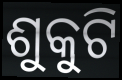
ଶୁକୁଟି